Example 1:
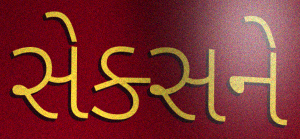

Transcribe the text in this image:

સેક્સને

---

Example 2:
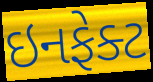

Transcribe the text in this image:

ઇનફેક્ટ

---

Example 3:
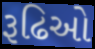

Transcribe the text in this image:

રૂઢિઓ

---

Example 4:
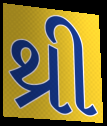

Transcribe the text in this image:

થ્રી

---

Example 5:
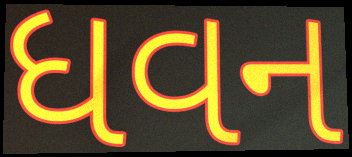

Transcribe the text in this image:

ધવન